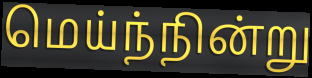
மெய்ந்நின்று